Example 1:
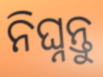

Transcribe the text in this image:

ନିଘ୍ନନ୍ତୁ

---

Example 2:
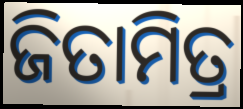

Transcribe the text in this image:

ଜିତାମିତ୍ର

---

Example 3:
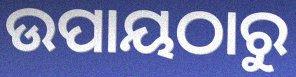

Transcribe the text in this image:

ଉପାୟଠାରୁ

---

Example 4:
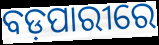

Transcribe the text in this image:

ବଡ଼ପାରୀରେ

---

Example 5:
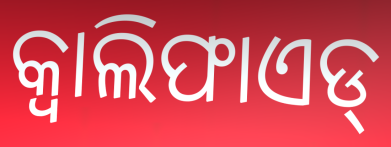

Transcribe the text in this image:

କ୍ୱାଲିଫାଏଡ୍